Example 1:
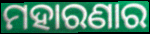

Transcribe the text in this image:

ମହାରଣାର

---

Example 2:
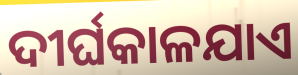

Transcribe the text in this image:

ଦୀର୍ଘକାଳଯାଏ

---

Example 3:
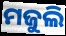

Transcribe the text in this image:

ମଜୁଲି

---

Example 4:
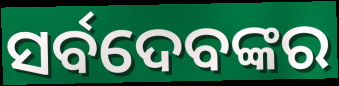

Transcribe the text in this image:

ସର୍ବଦେବଙ୍କର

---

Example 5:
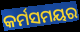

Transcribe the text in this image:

କର୍ମସମୟର